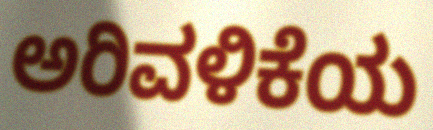
ಅರಿವಳಿಕೆಯ